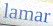
lamar